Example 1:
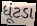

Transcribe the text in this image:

ધૂંટડા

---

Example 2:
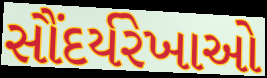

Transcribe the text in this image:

સૌંદર્યરેખાઓ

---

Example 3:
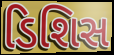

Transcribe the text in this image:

ડિશિસ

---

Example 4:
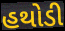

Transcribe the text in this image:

હથોડી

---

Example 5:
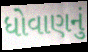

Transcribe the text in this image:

ધોવાણનું